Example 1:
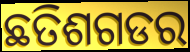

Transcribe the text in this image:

ଛତିଶଗଡର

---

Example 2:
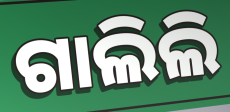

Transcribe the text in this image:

ଗାଲିଲି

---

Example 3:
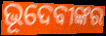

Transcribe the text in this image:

ଭୂଦେବୀଙ୍କର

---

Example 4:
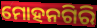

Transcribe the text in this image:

ମୋହନଗିରି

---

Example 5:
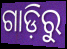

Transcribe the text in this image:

ଗାଡ଼ିରୁ